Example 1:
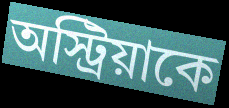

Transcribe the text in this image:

অস্ট্রিয়াকে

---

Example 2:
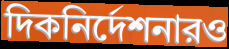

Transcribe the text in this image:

দিকনির্দেশনারও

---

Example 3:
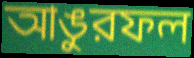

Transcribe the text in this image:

আঙুরফল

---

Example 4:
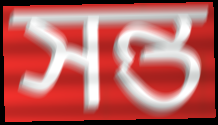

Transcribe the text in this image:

সন্ত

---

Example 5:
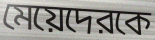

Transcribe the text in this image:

মেয়েদেরকে